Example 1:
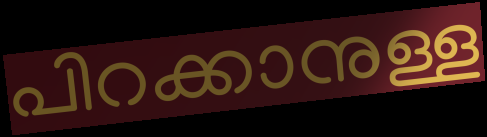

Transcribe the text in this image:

പിറക്കാനുള്ള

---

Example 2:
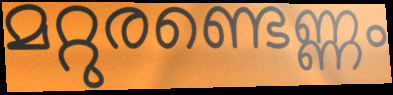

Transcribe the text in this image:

മറ്റുരണ്ടെണ്ണം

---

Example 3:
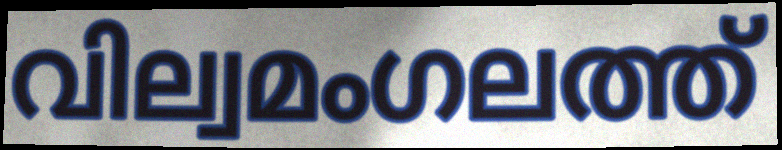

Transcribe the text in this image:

വില്വമംഗലത്ത്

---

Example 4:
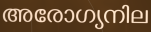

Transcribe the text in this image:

അരോഗ്യനില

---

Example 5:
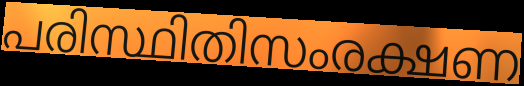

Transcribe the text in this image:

പരിസ്ഥിതിസംരക്ഷണ